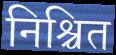
निश्चित